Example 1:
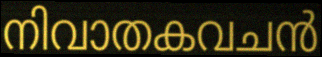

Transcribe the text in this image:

നിവാതകവചൻ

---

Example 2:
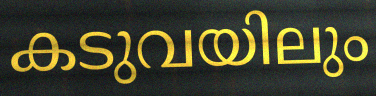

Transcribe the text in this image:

കടുവയിലും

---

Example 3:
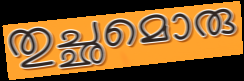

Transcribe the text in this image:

തുച്ഛമൊരു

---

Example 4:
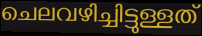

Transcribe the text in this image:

ചെലവഴിച്ചിട്ടുള്ളത്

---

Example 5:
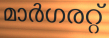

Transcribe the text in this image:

മാർഗരറ്റ്